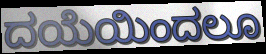
ದಯೆಯಿಂದಲೂ